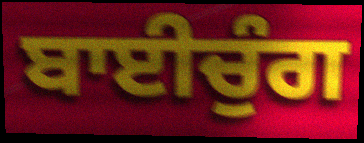
ਬਾਈਚੁੰਗ